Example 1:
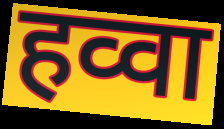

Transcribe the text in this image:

हव्वा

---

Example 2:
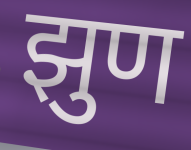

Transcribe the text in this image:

झुण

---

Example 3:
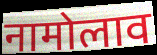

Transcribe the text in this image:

नामोलाव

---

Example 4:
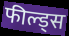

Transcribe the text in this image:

फील्ड्स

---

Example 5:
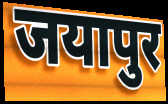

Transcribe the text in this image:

जयापुर